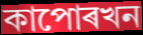
কাপোৰখন